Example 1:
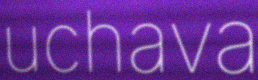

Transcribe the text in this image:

uchava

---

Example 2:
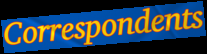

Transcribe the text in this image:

Correspondents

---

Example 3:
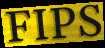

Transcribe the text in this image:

FIPS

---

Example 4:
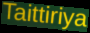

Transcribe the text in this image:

Taittiriya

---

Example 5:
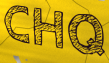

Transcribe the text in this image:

CHQ